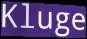
Kluge